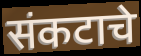
संकटाचे